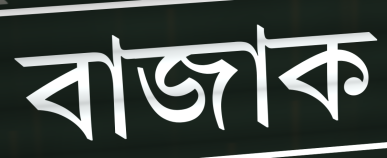
বাজাক